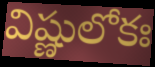
విష్ణులోకః